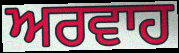
ਅਰਵਾਹ